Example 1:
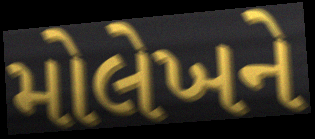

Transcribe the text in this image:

મોલેખને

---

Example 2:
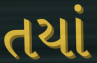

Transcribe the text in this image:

તયાં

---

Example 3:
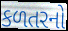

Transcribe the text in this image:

કળતરનો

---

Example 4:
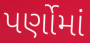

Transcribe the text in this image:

પર્ણોમાં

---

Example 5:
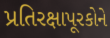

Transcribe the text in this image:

પ્રતિરક્ષાપૂરકોને